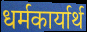
धर्मकार्यार्थ